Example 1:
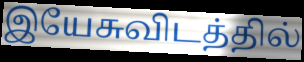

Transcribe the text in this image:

இயேசுவிடத்தில்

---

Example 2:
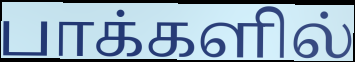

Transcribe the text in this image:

பாக்களில்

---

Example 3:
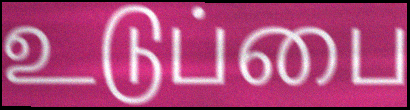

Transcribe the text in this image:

உடுப்பை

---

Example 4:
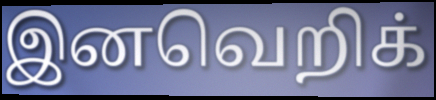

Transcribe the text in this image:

இனவெறிக்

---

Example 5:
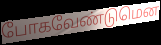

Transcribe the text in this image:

போகவேண்டுமென